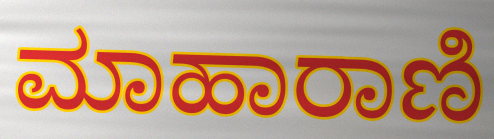
ಮಾಹಾರಾಣಿ